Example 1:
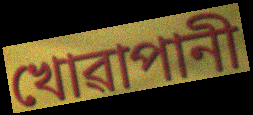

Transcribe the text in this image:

খোৱাপানী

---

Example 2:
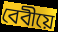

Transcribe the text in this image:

বেবীয়ে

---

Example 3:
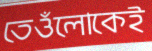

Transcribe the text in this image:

তেওঁলোকেই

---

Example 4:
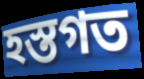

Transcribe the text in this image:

হস্তগত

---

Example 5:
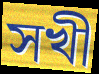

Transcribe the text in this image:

সখী